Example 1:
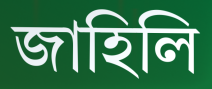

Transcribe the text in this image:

জাহিলি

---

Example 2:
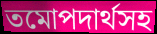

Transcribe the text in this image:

তমোপদার্থসহ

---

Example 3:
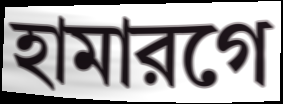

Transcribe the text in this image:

হামারগে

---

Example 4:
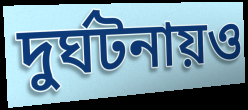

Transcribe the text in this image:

দুর্ঘটনায়ও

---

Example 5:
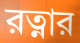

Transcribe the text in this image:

রত্নার